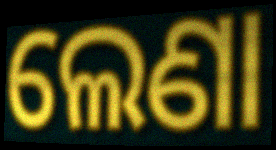
ଲେଣା